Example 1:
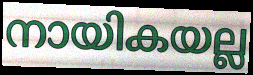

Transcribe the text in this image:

നായികയല്ല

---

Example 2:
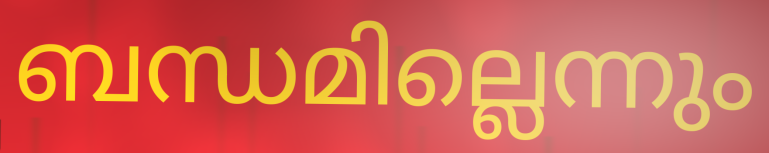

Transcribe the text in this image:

ബന്ധമില്ലെന്നും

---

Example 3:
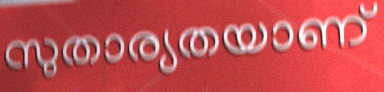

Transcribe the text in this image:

സുതാര്യതയാണ്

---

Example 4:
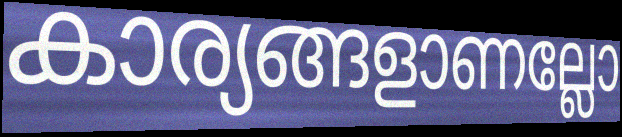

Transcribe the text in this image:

കാര്യങ്ങളാണല്ലോ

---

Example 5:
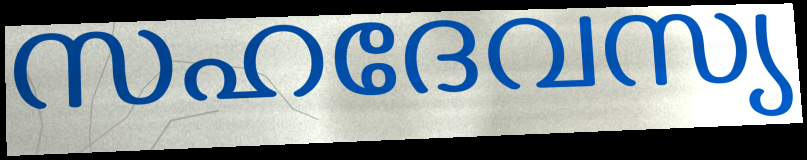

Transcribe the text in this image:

സഹദേവസ്യ